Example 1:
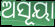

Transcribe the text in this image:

ଅସୂୟା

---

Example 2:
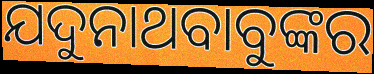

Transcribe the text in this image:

ଯଦୁନାଥବାବୁଙ୍କର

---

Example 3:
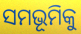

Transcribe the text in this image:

ସମଭୂମିକୁ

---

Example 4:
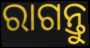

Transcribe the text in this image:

ରାଗନ୍ତୁ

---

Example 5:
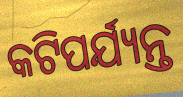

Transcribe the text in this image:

କଟିପର୍ଯ୍ୟନ୍ତ